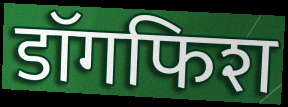
डॉगफिश